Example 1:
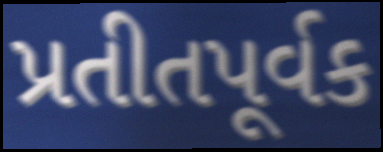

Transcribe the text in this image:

પ્રતીતપૂર્વક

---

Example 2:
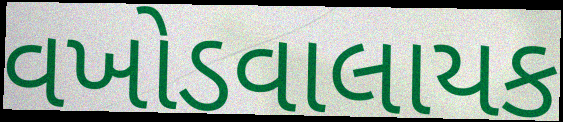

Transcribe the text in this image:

વખોડવાલાયક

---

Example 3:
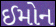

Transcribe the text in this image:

ઈમોન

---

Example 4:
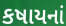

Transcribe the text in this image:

કષાયનાં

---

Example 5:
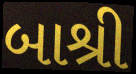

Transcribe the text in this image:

બાશ્રી